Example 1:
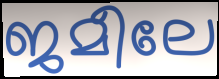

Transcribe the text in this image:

ജമീലേ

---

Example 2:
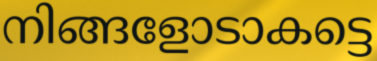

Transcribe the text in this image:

നിങ്ങളോടാകട്ടെ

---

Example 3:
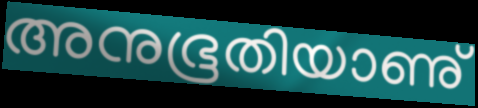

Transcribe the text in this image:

അനുഭൂതിയാണു്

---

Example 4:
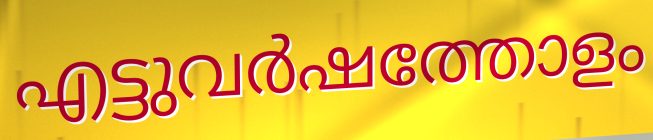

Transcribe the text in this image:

എട്ടുവർഷത്തോളം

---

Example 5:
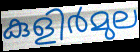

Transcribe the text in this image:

കുളിർമുല